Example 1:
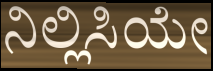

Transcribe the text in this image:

ನಿಲ್ಲಿಸಿಯೇ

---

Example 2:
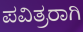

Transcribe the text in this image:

ಪವಿತ್ರರಾಗಿ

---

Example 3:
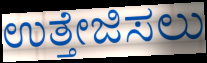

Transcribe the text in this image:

ಉತ್ತೇಜಿಸಲು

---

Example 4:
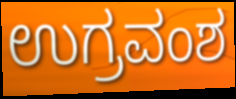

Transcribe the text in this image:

ಉಗ್ರವಂಶ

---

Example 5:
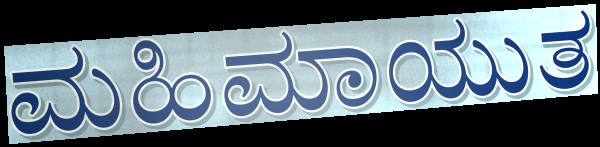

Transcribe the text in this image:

ಮಹಿಮಾಯುತ